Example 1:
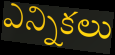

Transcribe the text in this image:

ఎన్నికలు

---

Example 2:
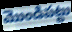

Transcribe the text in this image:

మొండిపట్టు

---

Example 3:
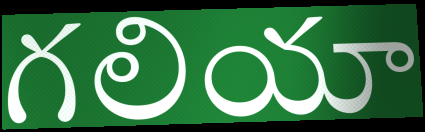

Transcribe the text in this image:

గలియా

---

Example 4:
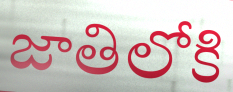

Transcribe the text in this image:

జాతిలోకి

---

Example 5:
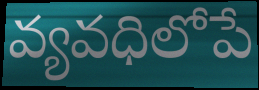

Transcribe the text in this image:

వ్యవధిలోపే